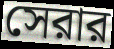
সেরার